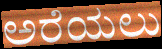
ಅರೆಯಲು